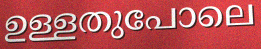
ഉള്ളതുപോലെ